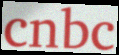
cnbc